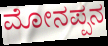
ಮೋನಪ್ಪನ